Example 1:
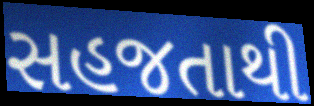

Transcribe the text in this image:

સહજતાથી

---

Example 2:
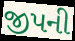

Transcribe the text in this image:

જીપની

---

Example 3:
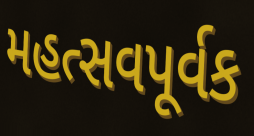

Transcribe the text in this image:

મહત્સવપૂર્વક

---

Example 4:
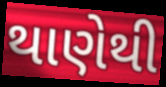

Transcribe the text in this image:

થાણેથી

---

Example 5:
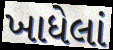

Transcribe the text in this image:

ખાધેલાં